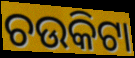
ଚଉକିଟା